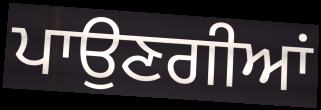
ਪਾਉਣਗੀਆਂ